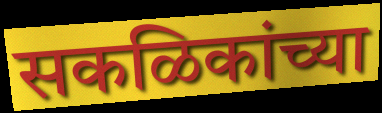
सकळिकांच्या